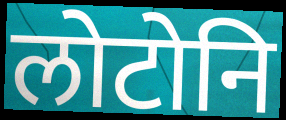
लोटोनि